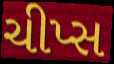
ચીપ્સ